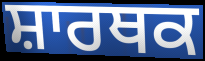
ਸ਼ਾਰਥਕ